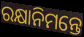
ରକ୍ଷାନିମନ୍ତେ